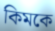
কিমকে